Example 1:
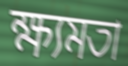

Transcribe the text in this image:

ক্ষ্যমতা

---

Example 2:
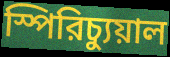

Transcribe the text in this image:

স্পিরিচ্যুয়াল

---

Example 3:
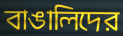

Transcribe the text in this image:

বাঙালিদের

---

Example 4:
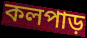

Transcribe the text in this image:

কলপাড়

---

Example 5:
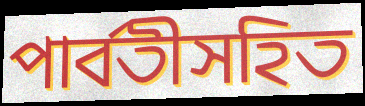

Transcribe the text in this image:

পার্বতীসহিত